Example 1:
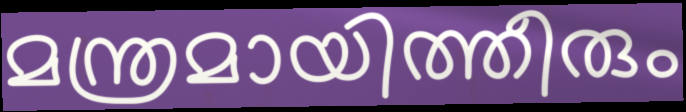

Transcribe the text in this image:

മന്ത്രമായിത്തീരും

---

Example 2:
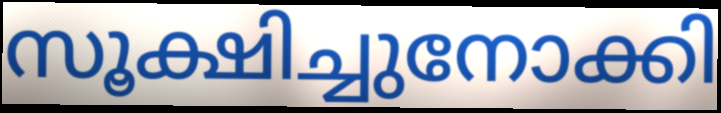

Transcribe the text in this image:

സൂക്ഷിച്ചുനോക്കി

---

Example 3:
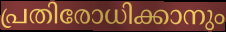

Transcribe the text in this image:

പ്രതിരോധിക്കാനും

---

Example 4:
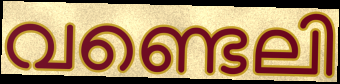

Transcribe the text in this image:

വണ്ടെലി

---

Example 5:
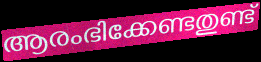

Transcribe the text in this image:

ആരംഭിക്കേണ്ടതുണ്ട്